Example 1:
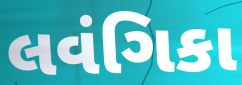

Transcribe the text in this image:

લવંગિકા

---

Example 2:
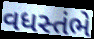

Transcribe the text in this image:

વધસ્તંભે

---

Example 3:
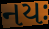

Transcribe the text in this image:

નયઃ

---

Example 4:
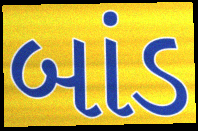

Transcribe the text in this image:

બાંડ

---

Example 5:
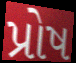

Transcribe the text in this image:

પ્રોષ